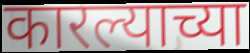
कारल्याच्या